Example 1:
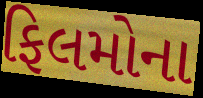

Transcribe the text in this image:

ફિલમોના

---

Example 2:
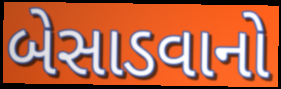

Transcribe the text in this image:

બેસાડવાનો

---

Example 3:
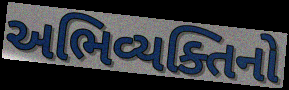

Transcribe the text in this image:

અભિવ્યક્તિનો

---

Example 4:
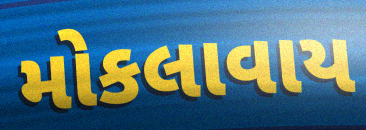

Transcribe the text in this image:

મોકલાવાય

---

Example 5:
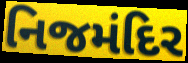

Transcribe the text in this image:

નિજમંદિર